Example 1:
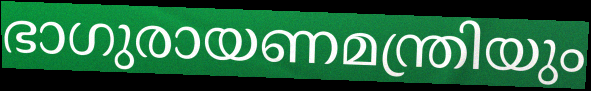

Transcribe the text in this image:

ഭാഗുരായണമന്ത്രിയും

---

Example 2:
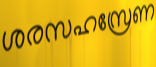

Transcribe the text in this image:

ശരസഹസ്രേണ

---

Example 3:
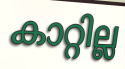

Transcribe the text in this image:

കാറ്റില്ല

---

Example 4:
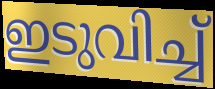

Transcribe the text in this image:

ഇടുവിച്ച്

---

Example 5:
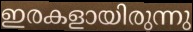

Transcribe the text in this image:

ഇരകളായിരുന്നു